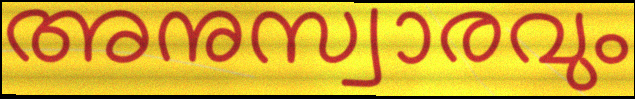
അനുസ്വാരവും